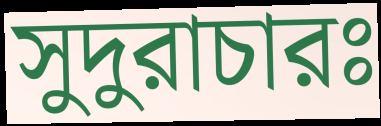
সুদুরাচারঃ